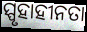
ସ୍ପୃହାହୀନତା